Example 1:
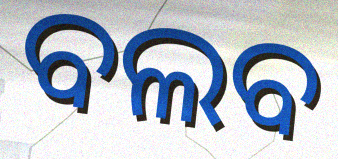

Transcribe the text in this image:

ବଲବ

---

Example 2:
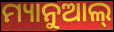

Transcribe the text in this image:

ମ୍ୟାନୁଆଲ୍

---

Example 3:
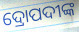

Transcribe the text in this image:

ଦ୍ରୋପଦୀଙ୍କ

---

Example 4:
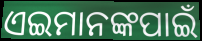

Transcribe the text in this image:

ଏଇମାନଙ୍କପାଇଁ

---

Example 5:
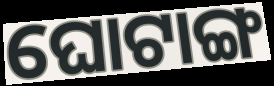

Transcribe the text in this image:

ଘୋଟାଙ୍ଗ